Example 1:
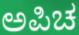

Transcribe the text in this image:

ಅಪಿಚ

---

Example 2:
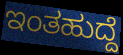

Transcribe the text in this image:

ಇಂತಹುದ್ದೆ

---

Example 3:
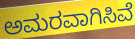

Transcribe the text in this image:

ಅಮರವಾಗಿಸಿವೆ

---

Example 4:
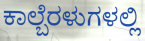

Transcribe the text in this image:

ಕಾಲ್ಬೆರಳುಗಳಲ್ಲಿ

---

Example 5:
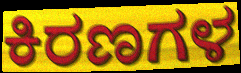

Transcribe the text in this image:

ಕಿರಣಗಳ